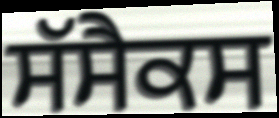
ਸੱਸੈਕਸ